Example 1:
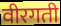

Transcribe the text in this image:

वीरगती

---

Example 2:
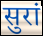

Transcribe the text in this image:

सुरां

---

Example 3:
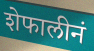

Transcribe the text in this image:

शेफालीनं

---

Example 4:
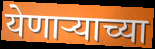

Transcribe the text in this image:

येणाऱ्याच्या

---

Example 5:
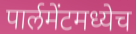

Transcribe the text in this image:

पार्लमेंटमध्येच